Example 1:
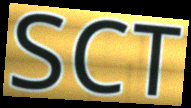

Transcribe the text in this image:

SCT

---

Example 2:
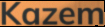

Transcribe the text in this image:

Kazem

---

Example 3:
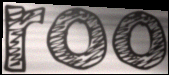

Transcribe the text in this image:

roo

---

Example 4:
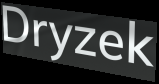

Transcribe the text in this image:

Dryzek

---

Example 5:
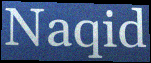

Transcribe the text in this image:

Naqid